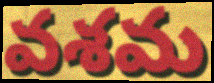
వశమ